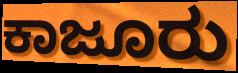
ಕಾಜೂರು